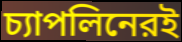
চ্যাপলিনেরই